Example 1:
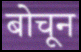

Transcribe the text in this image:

बोचून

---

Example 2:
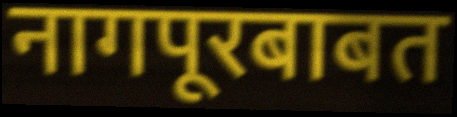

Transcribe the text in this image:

नागपूरबाबत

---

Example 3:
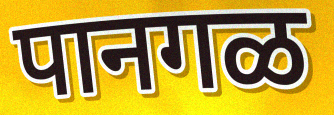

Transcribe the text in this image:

पानगळ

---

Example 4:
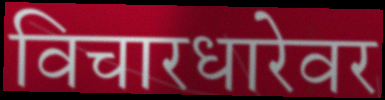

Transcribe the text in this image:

विचारधारेवर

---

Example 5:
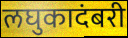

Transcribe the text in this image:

लघुकादंबरी